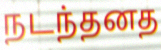
நடந்தனத